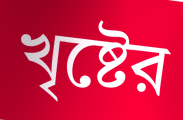
খৃষ্টের